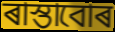
ৰাস্তাবোৰ